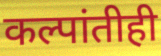
कल्पांतीही